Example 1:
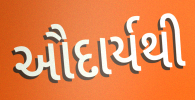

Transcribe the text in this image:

ઔદાર્યથી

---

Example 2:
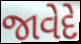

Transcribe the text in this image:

જાવેદે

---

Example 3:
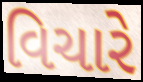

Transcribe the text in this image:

વિચારે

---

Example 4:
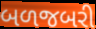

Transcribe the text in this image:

બળજબરી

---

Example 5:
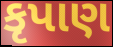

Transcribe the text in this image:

કૃપાણ